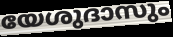
യേശുദാസും